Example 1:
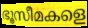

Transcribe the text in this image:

ഭൂസീമകളെ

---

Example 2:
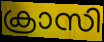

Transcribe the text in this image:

ക്രാസി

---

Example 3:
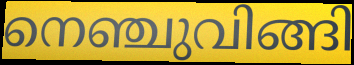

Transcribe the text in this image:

നെഞ്ചുവിങ്ങി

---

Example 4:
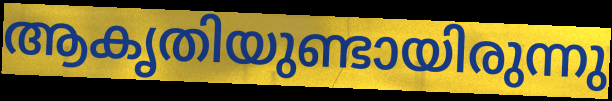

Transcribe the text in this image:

ആകൃതിയുണ്ടായിരുന്നു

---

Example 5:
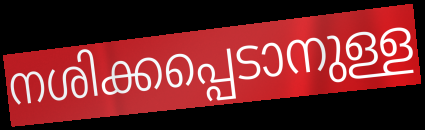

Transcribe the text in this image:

നശിക്കപ്പെടാനുള്ള